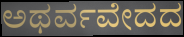
ಅಥರ್ವವೇದದ